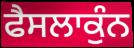
ਫੈਸਲਾਕੁੰਨ